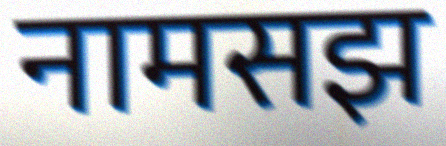
नामसझ